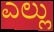
ಎಲ್ಲು